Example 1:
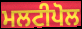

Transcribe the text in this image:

ਮਲਟੀਪੋਲ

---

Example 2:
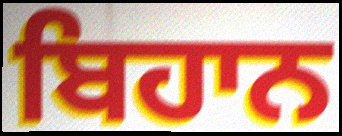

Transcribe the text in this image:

ਬਿਹਾਨ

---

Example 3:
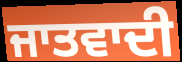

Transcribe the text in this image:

ਜਾਤਵਾਦੀ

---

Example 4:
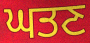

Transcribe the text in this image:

ਘਤਣ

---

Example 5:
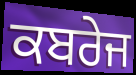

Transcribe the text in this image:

ਕਬਰੇਜ